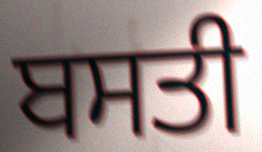
ਬਸਤੀ